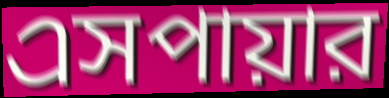
এসপায়ার